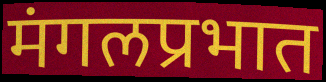
मंगलप्रभात